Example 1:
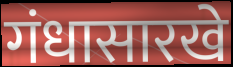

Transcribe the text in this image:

गंधासारखे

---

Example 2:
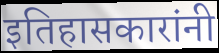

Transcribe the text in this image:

इतिहासकारांनी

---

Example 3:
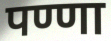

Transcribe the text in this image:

पण्णा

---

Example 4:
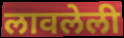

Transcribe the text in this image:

लावलेली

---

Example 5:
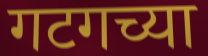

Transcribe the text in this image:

गटगच्या